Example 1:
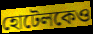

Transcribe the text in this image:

হোটেলকেও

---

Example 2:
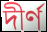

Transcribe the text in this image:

দীর্ণ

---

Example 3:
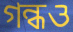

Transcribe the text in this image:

গন্ধও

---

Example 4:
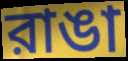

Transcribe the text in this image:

রাঙা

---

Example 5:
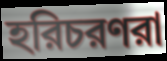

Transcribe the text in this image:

হরিচরণরা